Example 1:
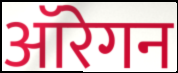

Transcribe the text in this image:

ऑरेगन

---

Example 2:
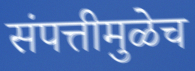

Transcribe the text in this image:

संपत्तीमुळेच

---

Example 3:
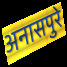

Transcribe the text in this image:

अनासपुरे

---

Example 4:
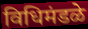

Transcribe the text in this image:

विधिमंडळे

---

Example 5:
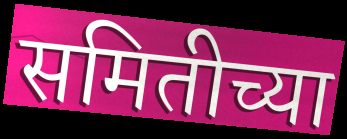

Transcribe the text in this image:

समितीच्या